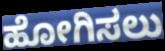
ಹೋಗಿಸಲು